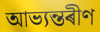
আভ্যন্তৰীণ